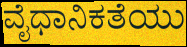
ವೈಧಾನಿಕತೆಯು